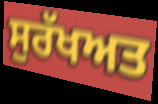
ਸੁਰੱਖਅਤ